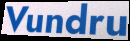
Vundru